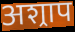
अश्राप